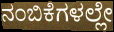
ನಂಬಿಕೆಗಳಲ್ಲೇ